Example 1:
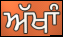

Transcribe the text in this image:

ਅੱਖਾੰ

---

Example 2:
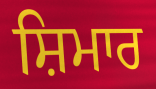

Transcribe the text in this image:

ਸ਼ਿਮਾਰ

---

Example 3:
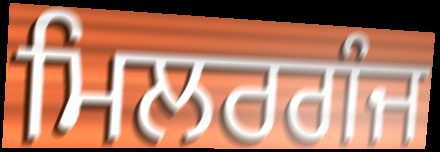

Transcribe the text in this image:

ਮਿਲਰਗੰਜ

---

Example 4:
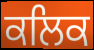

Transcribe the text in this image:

ਕਲਿਕ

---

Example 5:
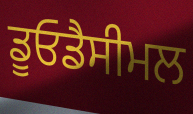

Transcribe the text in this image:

ਡੂਓਡੈਸੀਮਲ